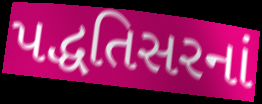
પદ્ધતિસરનાં